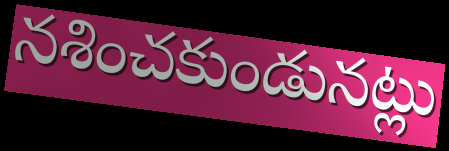
నశించకుండునట్లు